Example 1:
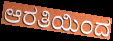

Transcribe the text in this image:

ಆರತಿಯಿಂದ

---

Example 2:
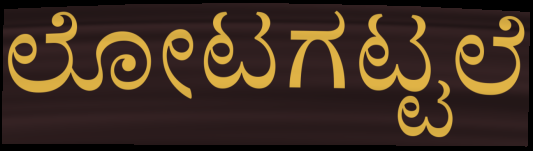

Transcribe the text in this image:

ಲೋಟಗಟ್ಟಲೆ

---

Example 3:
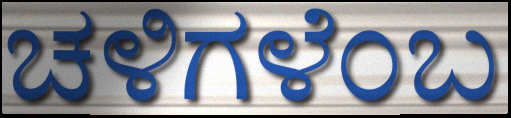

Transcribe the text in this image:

ಚಳಿಗಳೆಂಬ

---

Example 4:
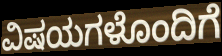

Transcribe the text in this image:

ವಿಷಯಗಳೊಂದಿಗೆ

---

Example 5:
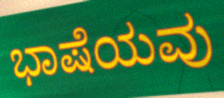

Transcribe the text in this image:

ಭಾಷೆಯವು